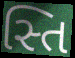
સ્તિ